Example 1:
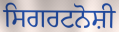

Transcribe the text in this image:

ਸਿਗਰਟਨੋਸ਼ੀ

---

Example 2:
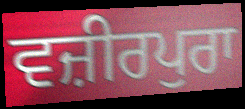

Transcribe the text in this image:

ਵਜ਼ੀਰਪੁਰਾ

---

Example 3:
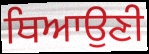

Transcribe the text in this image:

ਥਿਆਉਣੀ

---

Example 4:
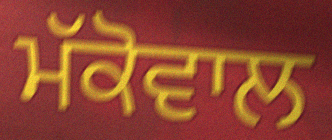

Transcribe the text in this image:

ਮੱਕੋਵਾਲ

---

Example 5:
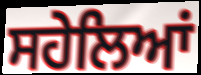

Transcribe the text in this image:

ਸਹੇਲਿਆਂ